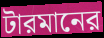
টারমানের